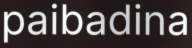
paibadina